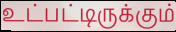
உட்பட்டிருக்கும்